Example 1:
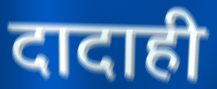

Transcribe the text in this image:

दादाही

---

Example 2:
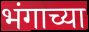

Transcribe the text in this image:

भंगाच्या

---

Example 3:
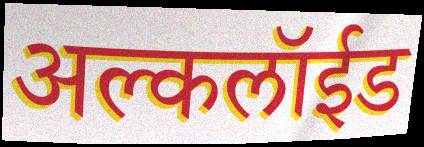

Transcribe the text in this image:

अल्कलॉईड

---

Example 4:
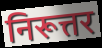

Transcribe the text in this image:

निरूत्तर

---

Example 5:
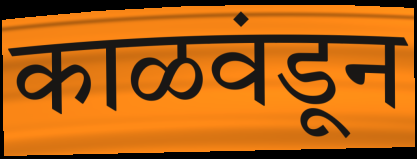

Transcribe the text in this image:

काळवंडून